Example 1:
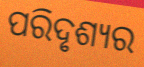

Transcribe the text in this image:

ପରିଦୃଶ୍ୟର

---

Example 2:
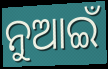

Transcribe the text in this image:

ନୁଆଇଁ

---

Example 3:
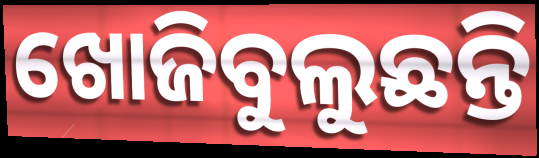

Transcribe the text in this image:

ଖୋଜିବୁଲୁଛନ୍ତି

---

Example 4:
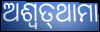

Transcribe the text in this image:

ଅଶ୍ବତ୍‌ଥାମା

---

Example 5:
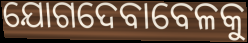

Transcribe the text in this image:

ଯୋଗଦେବାବେଳକୁ